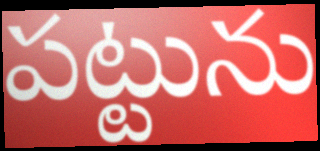
పట్టును